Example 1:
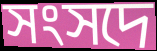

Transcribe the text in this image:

সংসদে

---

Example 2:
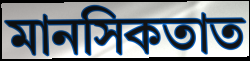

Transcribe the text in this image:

মানসিকতাত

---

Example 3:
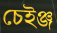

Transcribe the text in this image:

চেইঞ্জ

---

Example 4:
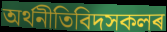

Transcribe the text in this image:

অৰ্থনীতিবিদসকলৰ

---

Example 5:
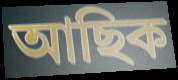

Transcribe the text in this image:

আছিক